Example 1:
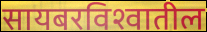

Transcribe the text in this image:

सायबरविश्वातील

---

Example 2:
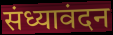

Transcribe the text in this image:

संध्यावंदन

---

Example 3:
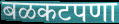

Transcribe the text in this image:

बळकटपणा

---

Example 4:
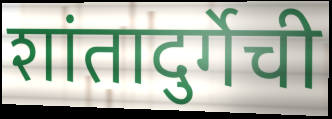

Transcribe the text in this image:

शांतादुर्गेची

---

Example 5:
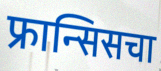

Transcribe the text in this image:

फ्रान्सिसचा